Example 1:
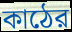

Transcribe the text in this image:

কাঠের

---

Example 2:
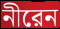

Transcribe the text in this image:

নীরেন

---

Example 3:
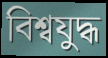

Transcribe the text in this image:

বিশ্বযুদ্ধ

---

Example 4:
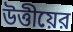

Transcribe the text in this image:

উত্তীয়ের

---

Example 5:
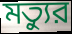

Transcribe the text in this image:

মত্যুর